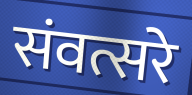
संवत्सरे